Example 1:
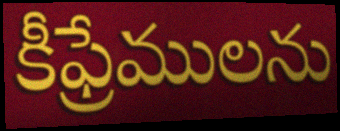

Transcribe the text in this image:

కీఫ్రేములను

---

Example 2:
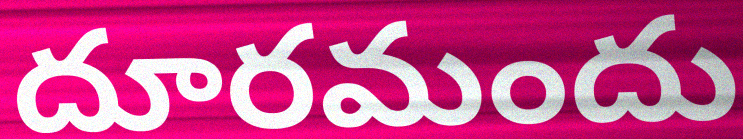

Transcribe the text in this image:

దూరమందు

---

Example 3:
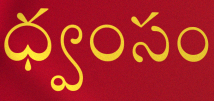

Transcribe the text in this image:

ధ్వంసం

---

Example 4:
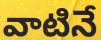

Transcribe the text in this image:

వాటినే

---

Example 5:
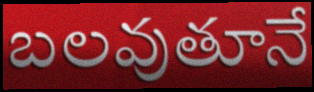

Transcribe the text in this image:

బలవుతూనే